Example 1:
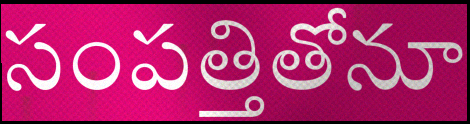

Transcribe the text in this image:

సంపత్తితోనూ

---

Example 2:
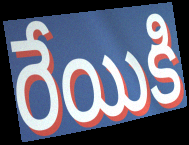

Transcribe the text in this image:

రేయికి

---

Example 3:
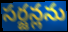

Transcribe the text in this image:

సర్జన్లను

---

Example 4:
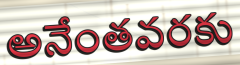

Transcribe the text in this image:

అనేంతవరకు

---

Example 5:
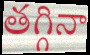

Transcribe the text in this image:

తగ్గినా